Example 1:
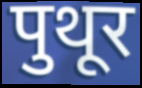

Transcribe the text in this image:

पुथूर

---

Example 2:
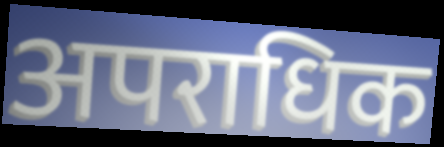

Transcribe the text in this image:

अपराधिक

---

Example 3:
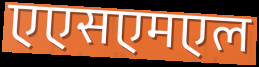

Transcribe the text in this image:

एएसएमएल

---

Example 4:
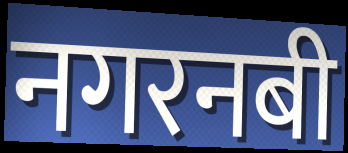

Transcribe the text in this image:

नगरनबी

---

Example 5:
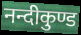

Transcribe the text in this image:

नन्दीकुण्ड